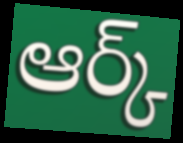
ఆర్క్